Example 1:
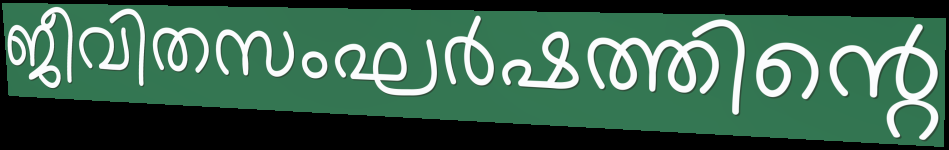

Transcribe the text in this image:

ജീവിതസംഘർഷത്തിന്റെ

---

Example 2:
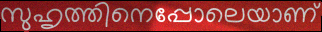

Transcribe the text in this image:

സുഹൃത്തിനെപ്പോലെയാണ്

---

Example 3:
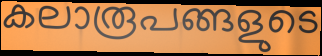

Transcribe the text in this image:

കലാരൂപങ്ങളുടെ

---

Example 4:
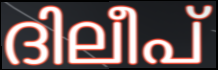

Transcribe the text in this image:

ദിലീപ്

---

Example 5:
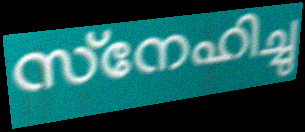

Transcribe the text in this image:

സ്‌നേഹിച്ചു